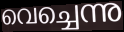
വെച്ചെന്നു